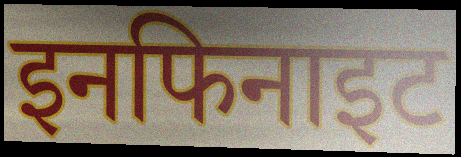
इनफिनाइट